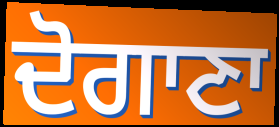
ਦੋਗਾਣਾ